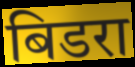
बिडरा